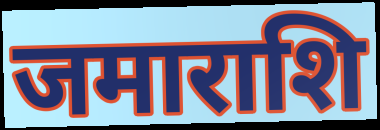
जमाराशि